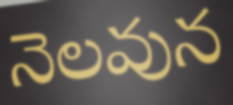
నెలవున